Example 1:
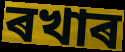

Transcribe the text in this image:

ৰখাৰ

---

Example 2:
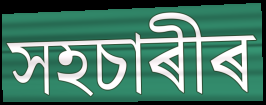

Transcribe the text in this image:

সহচাৰীৰ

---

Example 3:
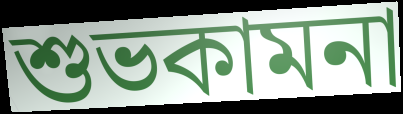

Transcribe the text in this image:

শুভকামনা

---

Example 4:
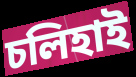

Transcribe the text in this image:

চলিহাই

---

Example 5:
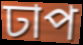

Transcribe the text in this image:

ঢাপ